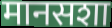
मानसशा